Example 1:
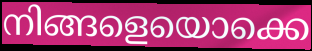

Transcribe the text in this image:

നിങ്ങളെയൊക്കെ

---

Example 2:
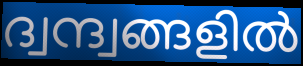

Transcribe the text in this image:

ദ്വന്ദ്വങ്ങളിൽ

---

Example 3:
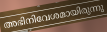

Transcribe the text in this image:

അഭിനിവേശമായിരുന്നു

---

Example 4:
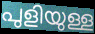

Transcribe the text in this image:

പുളിയുള്ള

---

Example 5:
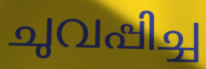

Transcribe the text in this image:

ചുവപ്പിച്ച